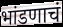
भांडणाचं